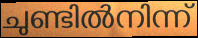
ചുണ്ടിൽനിന്ന്